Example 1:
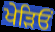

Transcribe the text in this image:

ਖੇੜਿਓਂ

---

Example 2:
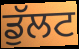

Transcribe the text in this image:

ਡੁੱਲਟ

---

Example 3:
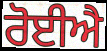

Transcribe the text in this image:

ਰੋਈਐ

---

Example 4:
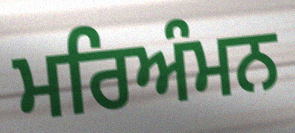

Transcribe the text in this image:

ਮਰਿਅੰਮਨ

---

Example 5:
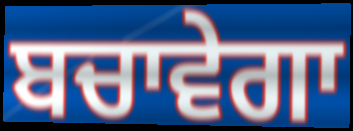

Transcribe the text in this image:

ਬਚਾਵੇਗਾ